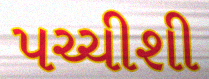
પચ્ચીશી